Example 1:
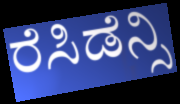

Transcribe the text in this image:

ರೆಸಿಡೆನ್ಸಿ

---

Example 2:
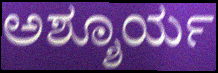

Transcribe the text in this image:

ಅಶ್ಶೂರ್ಯ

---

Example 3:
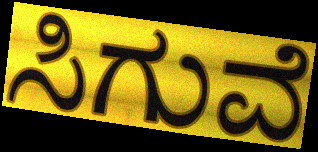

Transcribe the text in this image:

ಸಿಗುವೆ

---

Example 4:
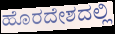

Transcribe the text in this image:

ಹೊರದೇಶದಲ್ಲಿ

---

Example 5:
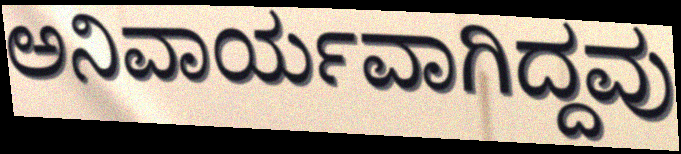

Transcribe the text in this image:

ಅನಿವಾರ್ಯವಾಗಿದ್ದವು